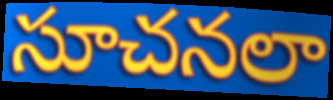
సూచనలా